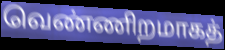
வெண்ணிறமாகத்